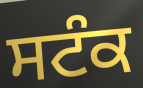
ਸਟੰਕ